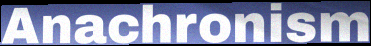
Anachronism